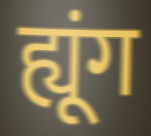
ह्यूंग